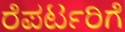
ರೆಪರ್ಟರಿಗೆ